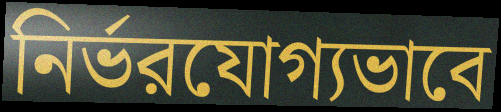
নির্ভরযোগ্যভাবে